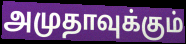
அமுதாவுக்கும்